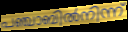
പഞ്ചാബിൽനിന്ന്